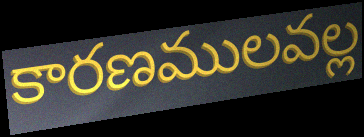
కారణములవల్ల